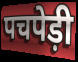
पचपेड़ी